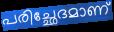
പരിച്ഛേദമാണ്